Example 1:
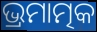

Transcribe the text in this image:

ଭ୍ରମାତ୍ମକ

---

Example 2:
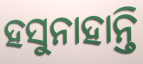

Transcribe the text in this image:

ହସୁନାହାନ୍ତି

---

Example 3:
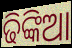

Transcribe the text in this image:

ଢିଙ୍କିଆ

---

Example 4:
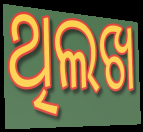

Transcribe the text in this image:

ଥିଲଖ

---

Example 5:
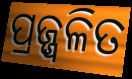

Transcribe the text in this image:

ପ୍ରଜ୍ଜ୍ବଳିତ